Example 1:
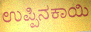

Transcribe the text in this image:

ಉಪ್ಪಿನಕಾಯಿ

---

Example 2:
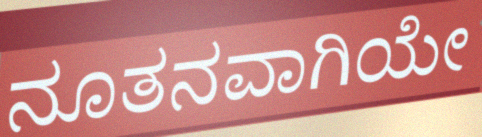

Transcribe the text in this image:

ನೂತನವಾಗಿಯೇ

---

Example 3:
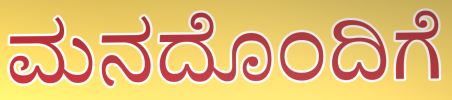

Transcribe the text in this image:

ಮನದೊಂದಿಗೆ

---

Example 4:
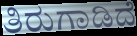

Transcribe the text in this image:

ತಿರುಗಾಡಿದೆ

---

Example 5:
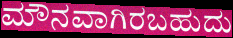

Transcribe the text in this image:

ಮೌನವಾಗಿರಬಹುದು